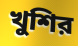
খুশির